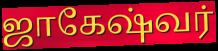
ஜாகேஷ்வர்